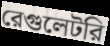
রেগুলেটরি